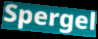
Spergel